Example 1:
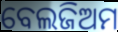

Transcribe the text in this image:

ବେଲଜିଅମ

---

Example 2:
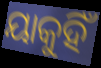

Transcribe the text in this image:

ୟାକୁହିଁ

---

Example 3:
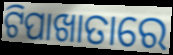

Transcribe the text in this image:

ଟିପାଖାତାରେ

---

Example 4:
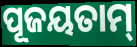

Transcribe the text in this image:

ପୂଜୟତାମ୍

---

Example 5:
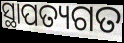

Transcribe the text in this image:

ସ୍ଥାପତ୍ୟଗତ